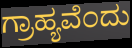
ಗ್ರಾಹ್ಯವೆಂದು